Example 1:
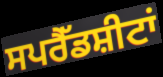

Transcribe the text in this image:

ਸਪਰੈੱਡਸ਼ੀਟਾਂ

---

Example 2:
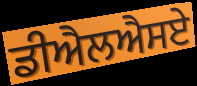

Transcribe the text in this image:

ਡੀਐਲਐਸਏ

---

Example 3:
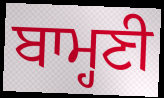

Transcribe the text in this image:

ਬਾਮ੍ਹਣੀ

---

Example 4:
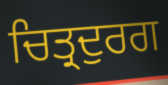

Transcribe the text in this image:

ਚਿਤ੍ਰਦੁਰਗ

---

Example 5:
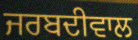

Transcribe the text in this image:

ਜਰਬਦੀਵਾਲ